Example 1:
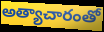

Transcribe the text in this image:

అత్యాచారంతో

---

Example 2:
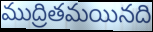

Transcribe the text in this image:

ముద్రితమయినది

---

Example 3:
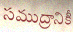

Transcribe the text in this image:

సముద్రానికీ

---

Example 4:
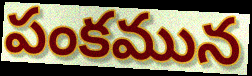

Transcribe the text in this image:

పంకమున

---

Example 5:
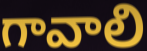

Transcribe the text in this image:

గావాలి